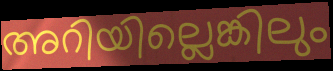
അറിയില്ലെങ്കിലും